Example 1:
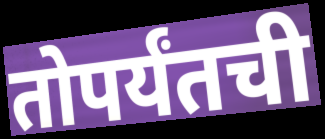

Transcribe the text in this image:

तोपर्यंतची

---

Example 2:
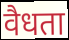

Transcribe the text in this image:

वैधता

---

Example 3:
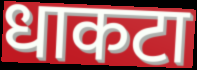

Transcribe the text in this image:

धाकटा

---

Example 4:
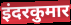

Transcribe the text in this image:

इंदरकुमार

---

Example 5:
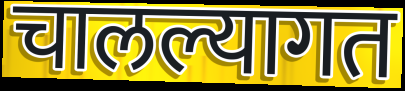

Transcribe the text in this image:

चालल्यागत